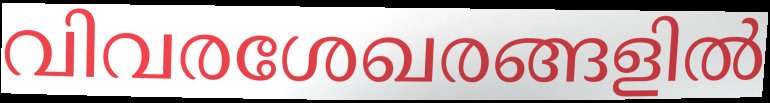
വിവരശേഖരങ്ങളിൽ